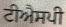
ਟੀਐਸਪੀ